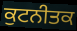
ਕੁਟਨੀਤਕ